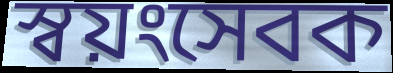
স্বয়ংসেবক